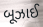
બૂઝાઈ